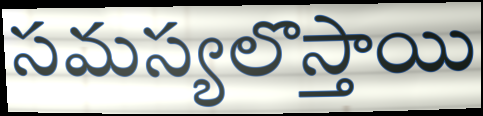
సమస్యలొస్తాయి